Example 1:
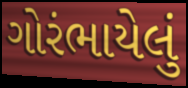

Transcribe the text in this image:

ગોરંભાયેલું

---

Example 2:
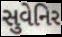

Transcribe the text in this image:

સુવેનિર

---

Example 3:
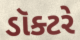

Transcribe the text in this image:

ડૉક્ટરે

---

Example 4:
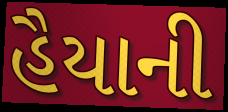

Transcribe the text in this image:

હૈયાની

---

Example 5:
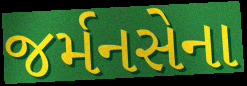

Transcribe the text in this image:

જર્મનસેના